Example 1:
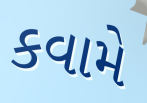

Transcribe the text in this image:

કવામે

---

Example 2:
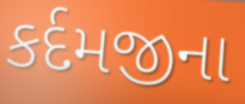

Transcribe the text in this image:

કર્દમજીના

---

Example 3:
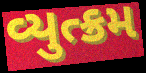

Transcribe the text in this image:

વ્યુત્ક્રમ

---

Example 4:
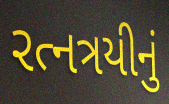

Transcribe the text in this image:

રત્નત્રયીનું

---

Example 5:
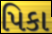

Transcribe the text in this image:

પિકા